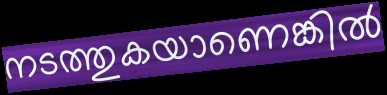
നടത്തുകയാണെങ്കിൽ